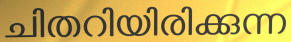
ചിതറിയിരിക്കുന്ന